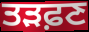
ਤੜਫ਼ਣ